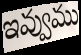
ఇవ్వుము